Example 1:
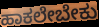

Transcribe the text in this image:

ಹಾಕಲೇಬೇಕು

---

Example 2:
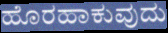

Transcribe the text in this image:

ಹೊರಹಾಕುವುದು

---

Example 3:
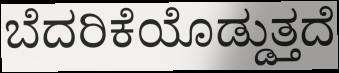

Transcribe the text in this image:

ಬೆದರಿಕೆಯೊಡ್ಡುತ್ತದೆ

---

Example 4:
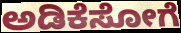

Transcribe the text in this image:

ಅಡಿಕೆಸೋಗೆ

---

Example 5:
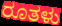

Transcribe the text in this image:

ರೂತಳು